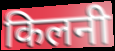
किलनी